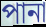
পানা